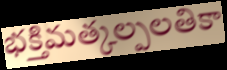
భక్తిమత్కల్పలతికా